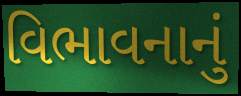
વિભાવનાનું